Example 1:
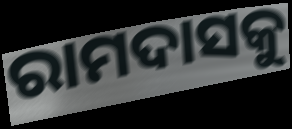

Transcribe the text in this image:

ରାମଦାସକୁ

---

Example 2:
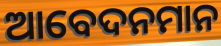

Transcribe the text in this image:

ଆବେଦନମାନ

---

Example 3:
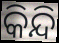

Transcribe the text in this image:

କିନ୍ଦି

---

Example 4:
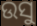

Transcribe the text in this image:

ଉସୁ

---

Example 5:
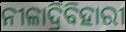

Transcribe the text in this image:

ନୀଳାଦ୍ରିବିହାରୀ